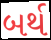
બર્થ